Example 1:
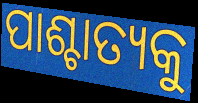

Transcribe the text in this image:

ପାଶ୍ଚାତ୍ୟକୁ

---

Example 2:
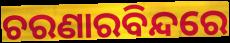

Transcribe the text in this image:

ଚରଣାରବିନ୍ଦରେ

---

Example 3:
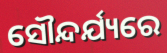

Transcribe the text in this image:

ସୌନ୍ଦର୍ଯ୍ୟରେ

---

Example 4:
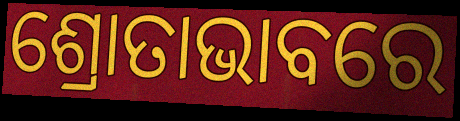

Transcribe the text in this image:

ଶ୍ରୋତାଭାବରେ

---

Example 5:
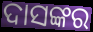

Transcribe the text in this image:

ଦାସଙ୍କର